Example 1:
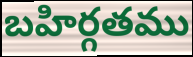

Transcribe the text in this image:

బహిర్గతము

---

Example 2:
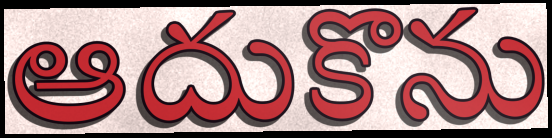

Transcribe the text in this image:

ఆదుకొను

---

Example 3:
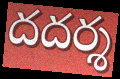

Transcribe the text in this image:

దదర్శ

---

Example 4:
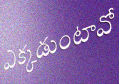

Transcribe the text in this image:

ఎక్కడుంటావో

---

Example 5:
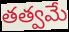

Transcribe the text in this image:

తత్వమే